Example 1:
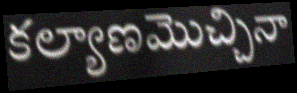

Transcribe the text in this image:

కల్యాణమొచ్చినా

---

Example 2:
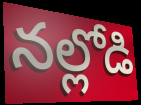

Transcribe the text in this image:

నల్లోడి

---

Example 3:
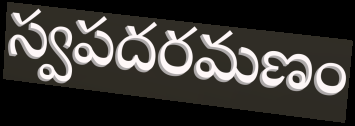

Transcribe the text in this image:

స్వపదరమణం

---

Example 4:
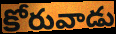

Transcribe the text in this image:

కోరువాడు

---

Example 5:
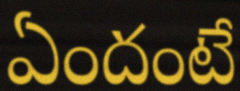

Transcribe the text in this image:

ఏందంటే